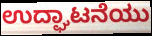
ಉದ್ಘಾಟನೆಯು